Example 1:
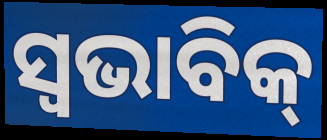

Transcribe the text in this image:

ସ୍ୱଭାବିକ୍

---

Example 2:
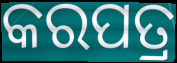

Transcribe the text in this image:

କରପତ୍ର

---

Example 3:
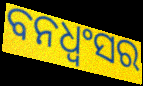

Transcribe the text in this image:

ବନଧ୍ଵଂସର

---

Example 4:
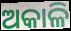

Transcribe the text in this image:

ଅକାଳି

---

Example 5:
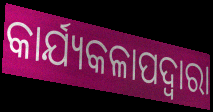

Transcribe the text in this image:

କାର୍ଯ୍ୟକଳାପଦ୍ବାରା